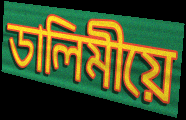
ডালিমীয়ে